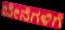
ಬೇನೆಗಳಿಗೆ